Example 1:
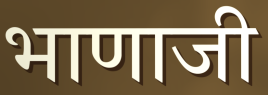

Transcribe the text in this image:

भाणाजी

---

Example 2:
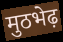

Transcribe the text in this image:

मुठभेढ़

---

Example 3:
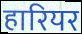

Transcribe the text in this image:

हारियर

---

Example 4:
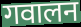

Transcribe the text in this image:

गवालन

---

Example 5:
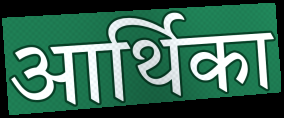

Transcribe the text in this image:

आर्थिका